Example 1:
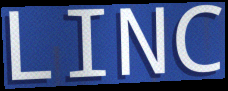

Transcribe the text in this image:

LINC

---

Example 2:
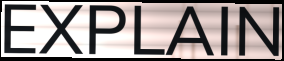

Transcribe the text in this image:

EXPLAIN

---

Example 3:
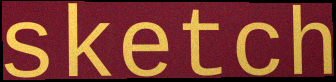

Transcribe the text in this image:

sketch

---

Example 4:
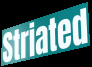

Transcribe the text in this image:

Striated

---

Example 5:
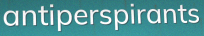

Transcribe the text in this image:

antiperspirants